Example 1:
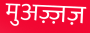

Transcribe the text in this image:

मुअज़्ज़ज़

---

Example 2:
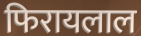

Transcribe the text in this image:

फिरायलाल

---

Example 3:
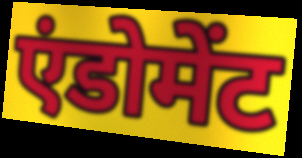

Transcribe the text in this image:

एंडोमेंट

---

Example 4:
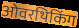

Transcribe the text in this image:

ओवरथिकिंग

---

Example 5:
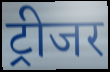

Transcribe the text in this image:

ट्रीजर